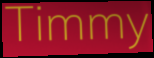
Timmy